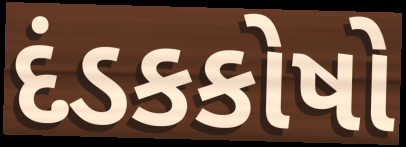
દંડકકોષો